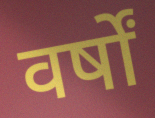
वर्षों